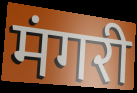
मंगरी